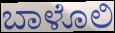
ಬಾಳೊಲಿ